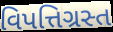
વિપત્તિગ્રસ્ત